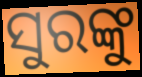
ସୁରଙ୍କୁ